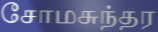
சோமசுந்தர